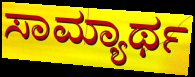
ಸಾಮ್ಯಾರ್ಥ